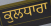
ਕੁਲਧਾਰਾ